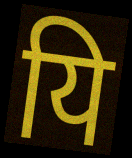
यि